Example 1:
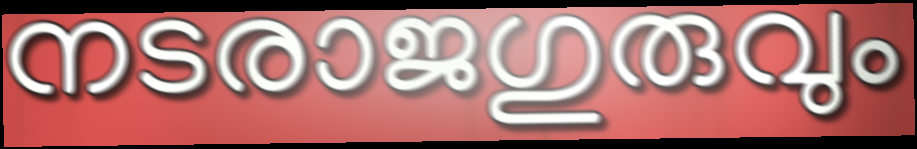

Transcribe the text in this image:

നടരാജഗുരുവും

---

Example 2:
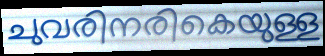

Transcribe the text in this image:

ചുവരിനരികെയുള്ള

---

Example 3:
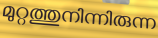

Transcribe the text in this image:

മുറ്റത്തുനിന്നിരുന്ന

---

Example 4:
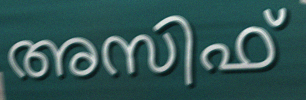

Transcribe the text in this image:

അസിഫ്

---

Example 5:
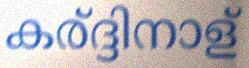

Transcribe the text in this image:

കര്ദ്ദിനാള്